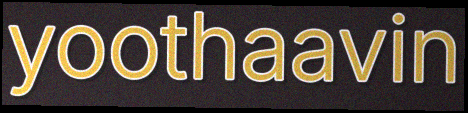
yoothaavin